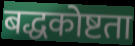
बद्धकोष्टता